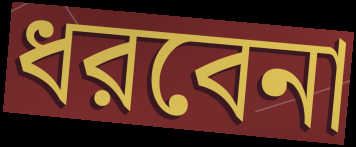
ধরবেনা